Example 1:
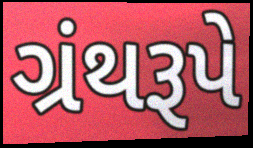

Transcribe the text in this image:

ગ્રંથરૂપે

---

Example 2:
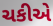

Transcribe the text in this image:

ચકીએ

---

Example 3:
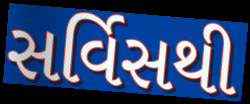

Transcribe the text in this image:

સર્વિસથી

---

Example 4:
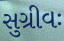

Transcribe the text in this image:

સુગ્રીવઃ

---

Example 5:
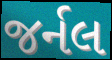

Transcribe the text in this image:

જર્નલ